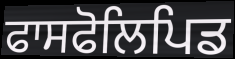
ਫਾਸਫੋਲਿਪਿਡ